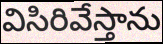
విసిరివేస్తాను